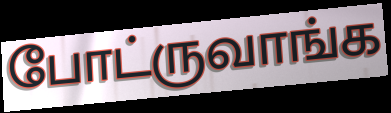
போட்ருவாங்க